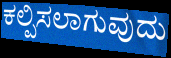
ಕಲ್ಪಿಸಲಾಗುವುದು